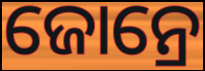
ଜୋନ୍ରେ